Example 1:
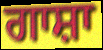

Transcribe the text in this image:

ਗਾਸ਼ਾ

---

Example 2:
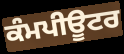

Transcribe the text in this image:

ਕੰਮਪੀਊਟਰ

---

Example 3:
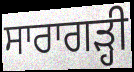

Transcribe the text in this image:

ਸਾਰਾਗੜ੍ਹੀ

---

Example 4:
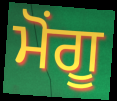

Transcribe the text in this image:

ਮੋਂਗੂ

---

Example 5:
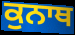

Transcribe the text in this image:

ਕੁਨਾਥ